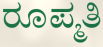
ರೂಪ್ಮತಿ